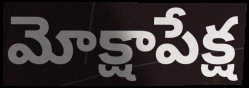
మోక్షాపేక్ష